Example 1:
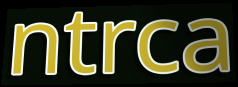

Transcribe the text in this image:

ntrca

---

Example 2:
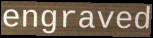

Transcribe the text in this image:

engraved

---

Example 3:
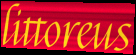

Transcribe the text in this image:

littoreus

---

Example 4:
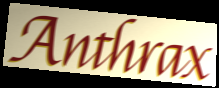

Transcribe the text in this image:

Anthrax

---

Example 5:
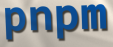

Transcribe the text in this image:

pnpm